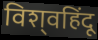
विश्वहिंदू